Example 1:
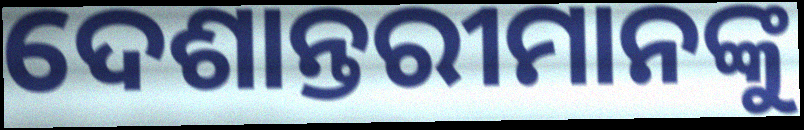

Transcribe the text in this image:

ଦେଶାନ୍ତରୀମାନଙ୍କୁ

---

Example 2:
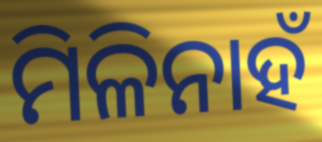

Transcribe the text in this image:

ମିଳିନାହଁ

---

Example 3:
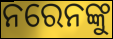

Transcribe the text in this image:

ନରେନଙ୍କୁ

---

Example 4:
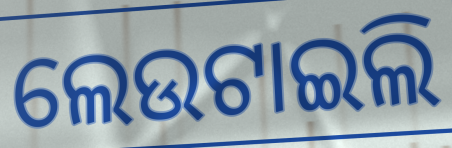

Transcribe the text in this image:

ଲେଉଟାଇଲି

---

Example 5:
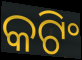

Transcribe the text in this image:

କଟିଂ